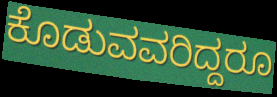
ಕೊಡುವವರಿದ್ದರೂ